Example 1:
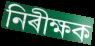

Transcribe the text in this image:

নিৰীক্ষক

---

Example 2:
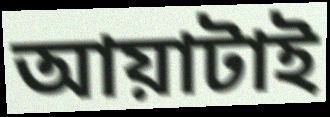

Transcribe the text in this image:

আয়াটাই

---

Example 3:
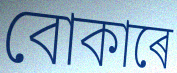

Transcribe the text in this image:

বোকাৰে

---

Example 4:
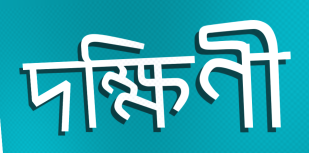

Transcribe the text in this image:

দক্ষিণী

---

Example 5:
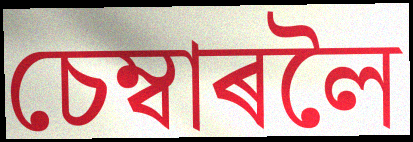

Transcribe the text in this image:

চেম্বাৰলৈ